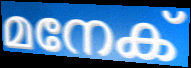
മനേക്